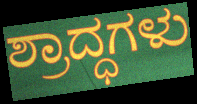
ಶ್ರಾದ್ಧಗಳು